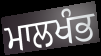
ਮਾਲਖੰਭ